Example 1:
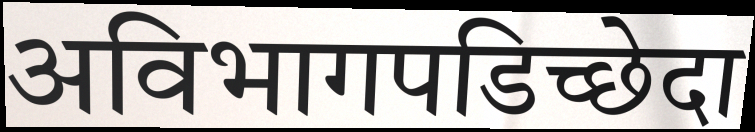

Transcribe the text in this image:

अविभागपडिच्छेदा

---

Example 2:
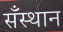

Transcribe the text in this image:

सँस्थान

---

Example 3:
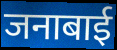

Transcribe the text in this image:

जनाबाई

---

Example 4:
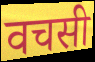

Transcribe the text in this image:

वचसी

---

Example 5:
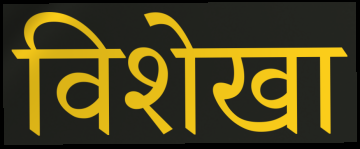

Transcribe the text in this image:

विशेखा